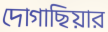
দোগাছিয়ার